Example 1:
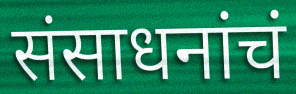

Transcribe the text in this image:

संसाधनांचं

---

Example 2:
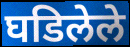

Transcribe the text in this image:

घडिलेले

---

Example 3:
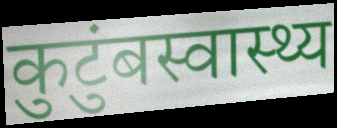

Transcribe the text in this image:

कुटुंबस्वास्थ्य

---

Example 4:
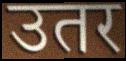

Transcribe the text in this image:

उतर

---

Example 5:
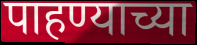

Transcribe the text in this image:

पाहण्याच्या